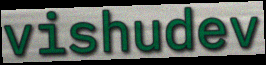
vishudev